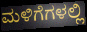
ಮಳಿಗೆಗಳಲ್ಲಿ